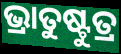
ଭ୍ରାତୁଷ୍ଟୁତ୍ର